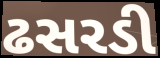
ઢસરડી